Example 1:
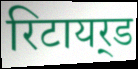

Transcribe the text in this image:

रिटायर्ड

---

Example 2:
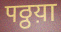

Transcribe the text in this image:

पठ्ठय़ा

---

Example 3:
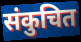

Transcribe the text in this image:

संकुचित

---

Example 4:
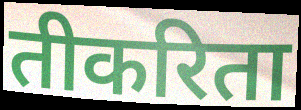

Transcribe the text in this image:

तीकरिता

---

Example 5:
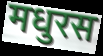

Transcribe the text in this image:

मधुरस